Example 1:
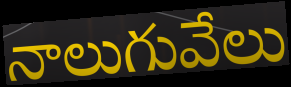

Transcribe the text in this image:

నాలుగువేలు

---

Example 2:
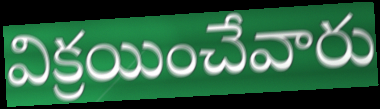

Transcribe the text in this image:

విక్రయించేవారు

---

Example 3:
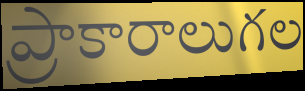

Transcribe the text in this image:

ప్రాకారాలుగల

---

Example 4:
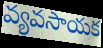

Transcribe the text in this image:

వ్యవసాయక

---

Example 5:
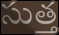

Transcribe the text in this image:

సుత్త